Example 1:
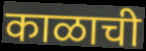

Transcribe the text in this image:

काळाची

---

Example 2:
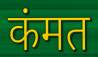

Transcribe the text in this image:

कंमत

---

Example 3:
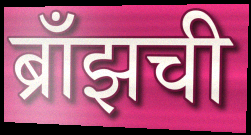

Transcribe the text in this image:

ब्राँझची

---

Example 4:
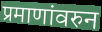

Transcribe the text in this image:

प्रमाणांवरुन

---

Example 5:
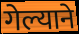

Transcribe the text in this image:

गेल्याने